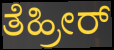
ತೆಹ್ರೀರ್